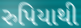
રુપિયાથી